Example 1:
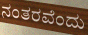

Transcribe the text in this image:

ನಂತರವೆಂದು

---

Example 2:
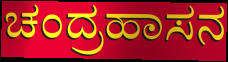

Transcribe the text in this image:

ಚಂದ್ರಹಾಸನ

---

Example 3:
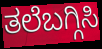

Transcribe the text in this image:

ತಲೆಬಗ್ಗಿಸಿ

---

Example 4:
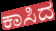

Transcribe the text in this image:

ಕಾಸಿದ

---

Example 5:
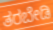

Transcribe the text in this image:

ತರಬೇಡಿ